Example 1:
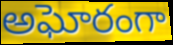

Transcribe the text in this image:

అఘోరంగా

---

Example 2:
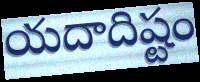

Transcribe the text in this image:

యదాదిష్టం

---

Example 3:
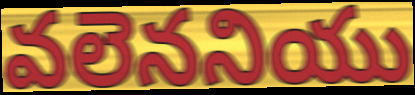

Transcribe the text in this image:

వలెననియు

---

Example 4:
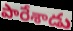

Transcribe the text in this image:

పారేశాడు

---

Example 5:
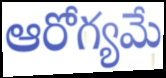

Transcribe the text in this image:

ఆరోగ్యమే